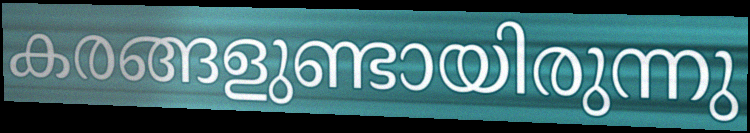
കരങ്ങളുണ്ടായിരുന്നു